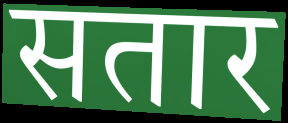
सतार